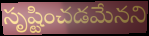
సృష్టించడమేనని